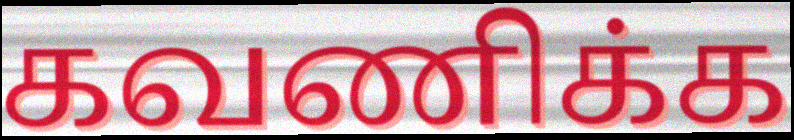
கவணிக்க